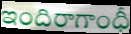
ఇందిరాగాంధీ